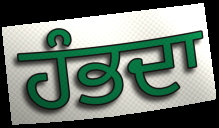
ਹੰਭਦਾ